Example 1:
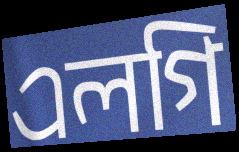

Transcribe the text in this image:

এলগি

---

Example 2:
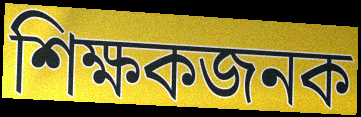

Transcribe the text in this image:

শিক্ষকজনক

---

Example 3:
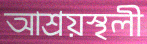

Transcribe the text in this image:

আশ্ৰয়স্থলী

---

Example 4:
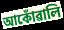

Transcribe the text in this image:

আকোঁৱালি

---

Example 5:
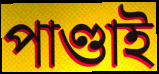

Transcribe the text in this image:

পাণ্ডাই